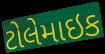
ટોલેમાઇક